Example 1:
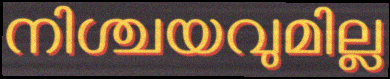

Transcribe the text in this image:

നിശ്ചയവുമില്ല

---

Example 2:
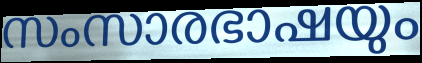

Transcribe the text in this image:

സംസാരഭാഷയും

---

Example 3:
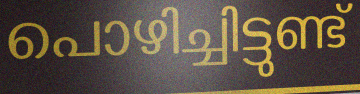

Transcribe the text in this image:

പൊഴിച്ചിട്ടുണ്ട്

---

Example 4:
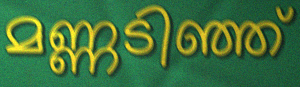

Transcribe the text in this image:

മണ്ണടിഞ്ഞ്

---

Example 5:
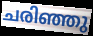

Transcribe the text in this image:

ചരിഞ്ഞു